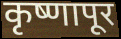
कृष्णापूर